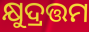
କ୍ଷୁଦ୍ରତ୍ତମ